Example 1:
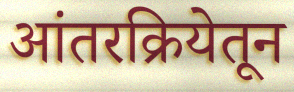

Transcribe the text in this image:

आंतरक्रियेतून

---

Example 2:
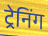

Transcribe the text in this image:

ट्रेनिंग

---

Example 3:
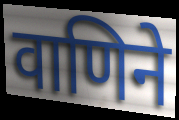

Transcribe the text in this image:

वाणिने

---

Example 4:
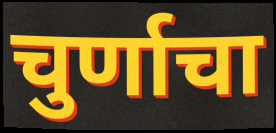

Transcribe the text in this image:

चुर्णाचा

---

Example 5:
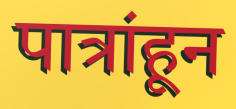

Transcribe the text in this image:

पात्रांहून